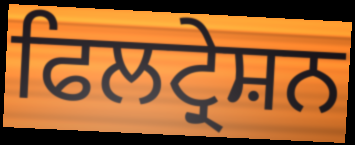
ਫਿਲਟ੍ਰੇਸ਼ਨ